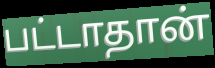
பட்டாதான்